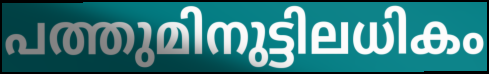
പത്തുമിനുട്ടിലധികം